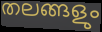
തലങ്ങളും